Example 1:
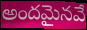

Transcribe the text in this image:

అందమైనవే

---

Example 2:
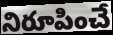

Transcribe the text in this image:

నిరూపించే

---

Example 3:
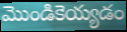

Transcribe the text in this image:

మొండికెయ్యడం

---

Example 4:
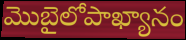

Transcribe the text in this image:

మొబైలోపాఖ్యానం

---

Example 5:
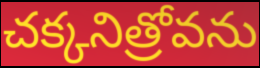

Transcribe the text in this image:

చక్కనిత్రోవను